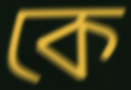
কে